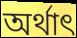
অর্থাৎ